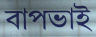
বাপভাই